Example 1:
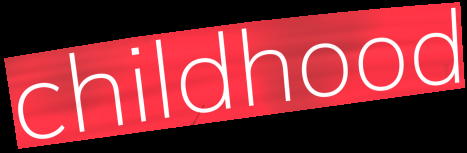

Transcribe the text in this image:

childhood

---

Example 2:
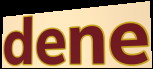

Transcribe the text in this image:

dene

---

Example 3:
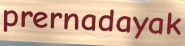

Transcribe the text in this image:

prernadayak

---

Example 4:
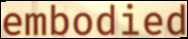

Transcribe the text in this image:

embodied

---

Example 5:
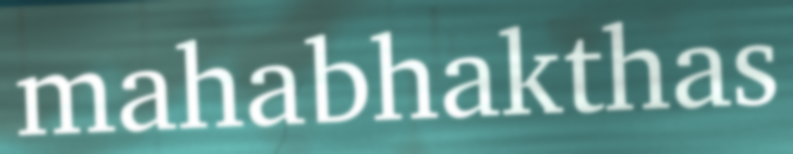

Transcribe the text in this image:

mahabhakthas